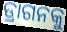
ଡ୍ରାଗନକୁ